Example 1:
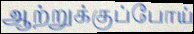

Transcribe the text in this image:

ஆற்றுக்குப்போய்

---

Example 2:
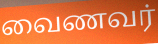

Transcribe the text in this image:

வைணவர்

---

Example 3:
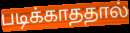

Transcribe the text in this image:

படிக்காததால்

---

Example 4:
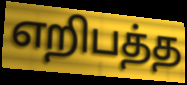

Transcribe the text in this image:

எறிபத்த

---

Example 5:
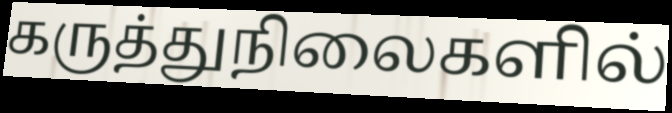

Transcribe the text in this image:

கருத்துநிலைகளில்